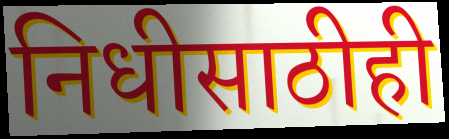
निधीसाठीही